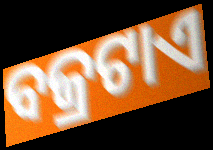
ବଜ୍ରଟାଏ